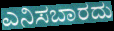
ಎನಿಸಬಾರದು